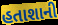
હતાશાની